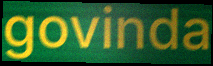
govinda